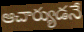
ఆచార్యుడనే